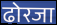
ढोरजा